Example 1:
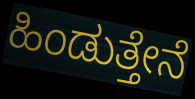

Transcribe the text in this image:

ಹಿಂಡುತ್ತೇನೆ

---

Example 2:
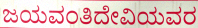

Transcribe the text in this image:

ಜಯವಂತಿದೇವಿಯವರ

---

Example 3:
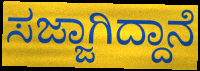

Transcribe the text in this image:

ಸಜ್ಜಾಗಿದ್ದಾನೆ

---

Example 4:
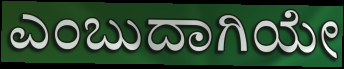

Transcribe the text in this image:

ಎಂಬುದಾಗಿಯೇ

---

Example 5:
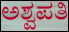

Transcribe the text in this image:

ಅಶ್ವಪತಿ